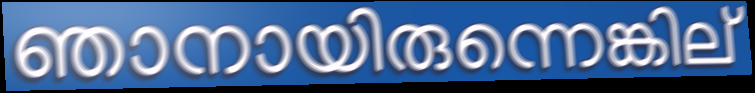
ഞാനായിരുന്നെങ്കില്